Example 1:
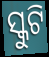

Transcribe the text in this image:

ସ୍କୁଟି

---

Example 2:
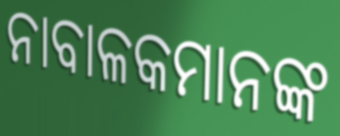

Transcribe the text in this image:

ନାବାଳକମାନଙ୍କ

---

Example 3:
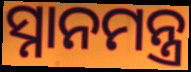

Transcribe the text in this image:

ସ୍ନାନମନ୍ତ୍ର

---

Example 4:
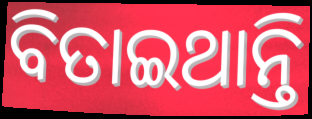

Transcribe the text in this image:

ବିତାଇଥାନ୍ତି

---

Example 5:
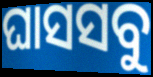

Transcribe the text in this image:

ଘାସସବୁ